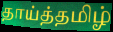
தாய்த்தமிழ்